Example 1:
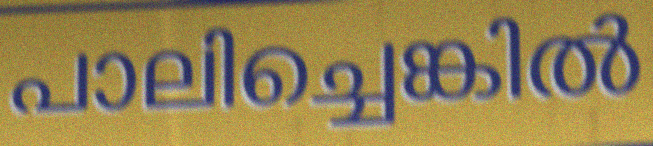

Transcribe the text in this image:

പാലിച്ചെങ്കിൽ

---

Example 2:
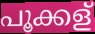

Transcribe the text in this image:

പൂക്കള്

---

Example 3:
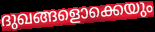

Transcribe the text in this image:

ദുഖങ്ങളൊക്കെയും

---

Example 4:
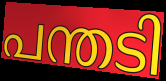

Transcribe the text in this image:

പന്തടി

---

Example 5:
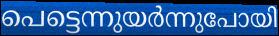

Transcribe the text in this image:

പെട്ടെന്നുയർന്നുപോയി